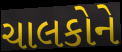
ચાલકોને